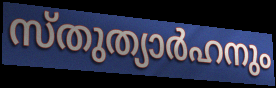
സ്തുത്യാർഹനും